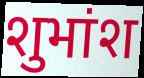
शुभांश